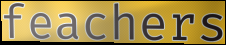
feachers